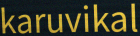
karuvikal